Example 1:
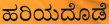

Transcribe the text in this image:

ಹರಿಯದೊಡೆ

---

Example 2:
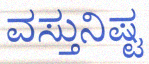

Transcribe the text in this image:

ವಸ್ತುನಿಷ್ಟ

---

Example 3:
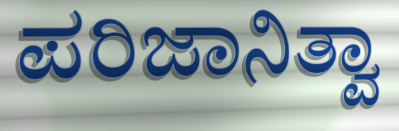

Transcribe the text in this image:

ಪರಿಜಾನಿತ್ವಾ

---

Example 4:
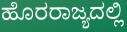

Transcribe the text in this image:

ಹೊರರಾಜ್ಯದಲ್ಲಿ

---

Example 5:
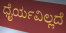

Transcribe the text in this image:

ಧೈರ್ಯವಿಲ್ಲದೆ